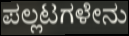
ಪಲ್ಲಟಗಳೇನು